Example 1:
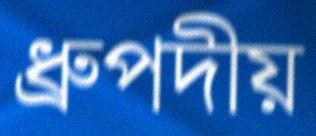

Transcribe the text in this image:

ধ্রুপদীয়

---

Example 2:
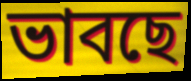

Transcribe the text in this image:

ভাবছে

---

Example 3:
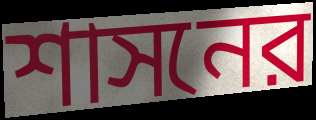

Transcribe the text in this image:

শাসনের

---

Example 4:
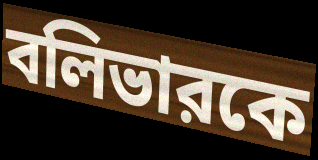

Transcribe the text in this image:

বলিভারকে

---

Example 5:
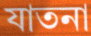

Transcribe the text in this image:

যাতনা